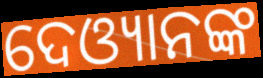
ଦେଓ୍ୟାନଙ୍କ